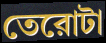
তেরোটা